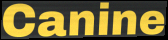
Canine